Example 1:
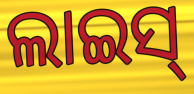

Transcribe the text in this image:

ଲାଇସ୍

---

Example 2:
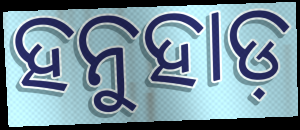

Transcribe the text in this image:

ହନୁହାଡ଼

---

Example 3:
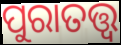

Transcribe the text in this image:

ପୁରାତତ୍ତ୍ୱ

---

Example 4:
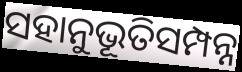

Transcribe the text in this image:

ସହାନୁଭୂତିସମ୍ପନ୍ନ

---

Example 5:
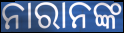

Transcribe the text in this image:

ନାରାନଙ୍କ